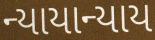
ન્યાયાન્યાય